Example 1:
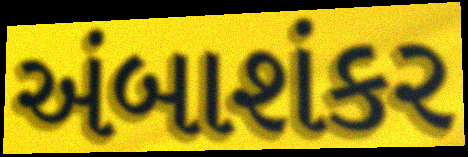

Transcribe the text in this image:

અંબાશંકર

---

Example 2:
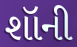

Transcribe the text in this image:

શૉની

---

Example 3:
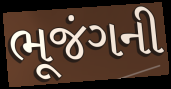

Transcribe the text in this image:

ભૂજંગની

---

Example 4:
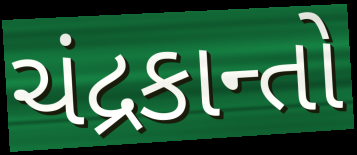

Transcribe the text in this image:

ચંદ્રકાન્તો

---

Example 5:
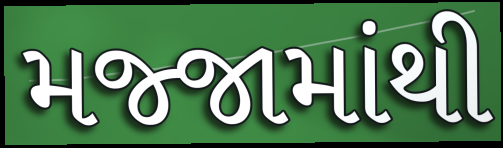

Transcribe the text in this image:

મજ્જામાંથી